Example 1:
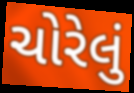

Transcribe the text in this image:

ચોરેલું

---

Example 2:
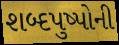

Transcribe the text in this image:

શબ્દપુષ્પોની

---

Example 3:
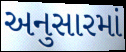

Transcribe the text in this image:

અનુસારમાં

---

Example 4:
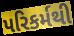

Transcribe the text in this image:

પરિકર્મથી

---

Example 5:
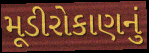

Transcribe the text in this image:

મૂડીરોકાણનું